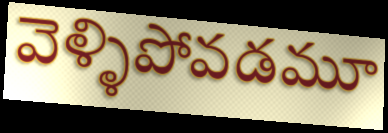
వెళ్ళిపోవడమూ